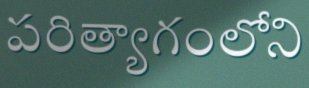
పరిత్యాగంలోని